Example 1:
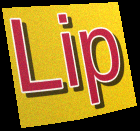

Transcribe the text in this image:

Lip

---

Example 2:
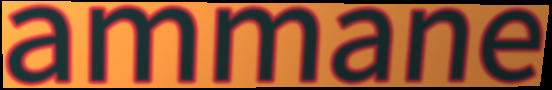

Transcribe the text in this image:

ammane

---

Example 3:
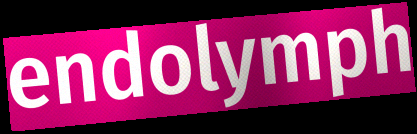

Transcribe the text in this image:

endolymph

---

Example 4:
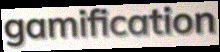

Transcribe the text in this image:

gamification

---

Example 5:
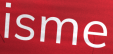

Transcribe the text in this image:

isme